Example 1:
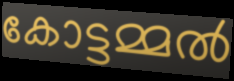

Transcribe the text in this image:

കോട്ടമ്മൽ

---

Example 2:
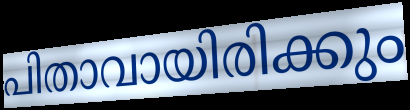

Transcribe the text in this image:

പിതാവായിരിക്കും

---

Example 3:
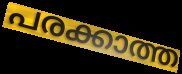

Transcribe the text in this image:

പരക്കാത്ത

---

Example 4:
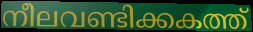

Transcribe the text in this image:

നീലവണ്ടിക്കകത്ത്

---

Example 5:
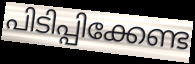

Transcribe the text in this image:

പിടിപ്പിക്കേണ്ട